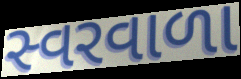
સ્વરવાળા